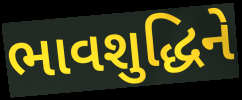
ભાવશુદ્ધિને